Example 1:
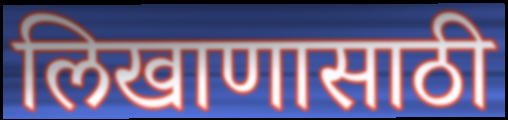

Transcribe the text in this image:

लिखाणासाठी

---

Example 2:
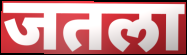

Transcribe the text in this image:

जतला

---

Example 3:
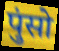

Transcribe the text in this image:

पुंसो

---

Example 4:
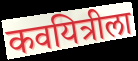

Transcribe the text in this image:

कवयित्रीला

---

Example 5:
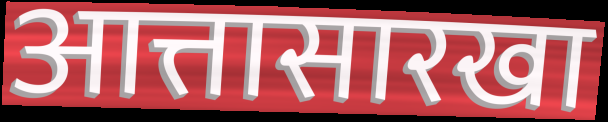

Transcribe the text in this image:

आत्तासारखा